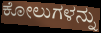
ಕೋಲುಗಳನ್ನು